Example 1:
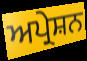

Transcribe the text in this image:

ਅਪ੍ਰੇਸ਼ਨ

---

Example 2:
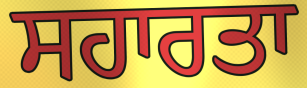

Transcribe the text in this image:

ਸਹਾਰਤਾ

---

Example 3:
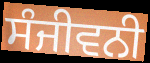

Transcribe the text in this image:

ਸੰਜੀਵਨੀ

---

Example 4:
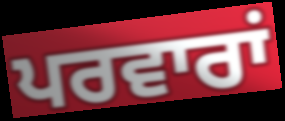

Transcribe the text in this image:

ਪਰਵਾਰਾਂ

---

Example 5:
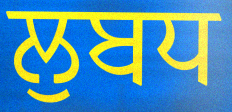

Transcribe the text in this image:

ਲੁਬਧ